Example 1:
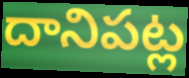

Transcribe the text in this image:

దానిపట్ల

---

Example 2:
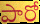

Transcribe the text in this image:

పారో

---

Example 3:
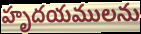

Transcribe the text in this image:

హృదయములను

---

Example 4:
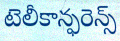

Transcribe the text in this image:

టెలీకాన్ఫరెన్స్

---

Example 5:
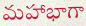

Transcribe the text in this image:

మహాభాగా